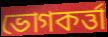
ভোগকর্ত্তা